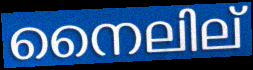
നൈലില്